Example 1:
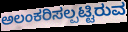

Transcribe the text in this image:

ಅಲಂಕರಿಸಲ್ಪಟ್ಟಿರುವ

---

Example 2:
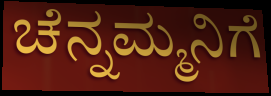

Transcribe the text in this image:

ಚೆನ್ನಮ್ಮನಿಗೆ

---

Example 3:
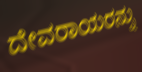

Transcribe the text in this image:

ದೇವರಾಯರನ್ನು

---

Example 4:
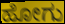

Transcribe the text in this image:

ಹೋಗು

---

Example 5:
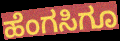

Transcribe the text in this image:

ಹೆಂಗಸಿಗೂ